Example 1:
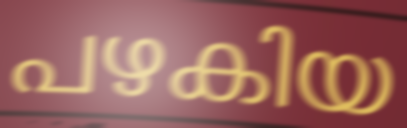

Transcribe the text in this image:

പഴകിയ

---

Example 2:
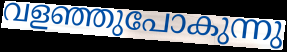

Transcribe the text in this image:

വളഞ്ഞുപോകുന്നു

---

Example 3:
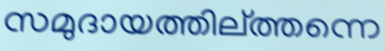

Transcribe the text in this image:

സമുദായത്തില്ത്തന്നെ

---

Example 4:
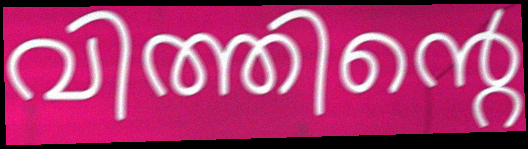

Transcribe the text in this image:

വിത്തിന്റെ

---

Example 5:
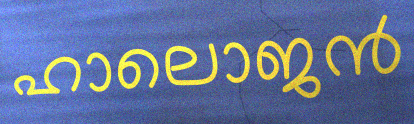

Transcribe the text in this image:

ഹാലൊജൻ